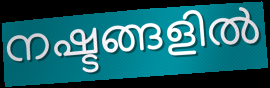
നഷ്ടങ്ങളിൽ